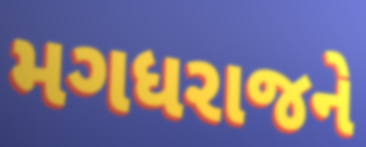
મગધરાજને